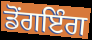
ਡੋਂਗਇੰਗ